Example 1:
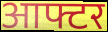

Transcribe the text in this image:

आफ्टर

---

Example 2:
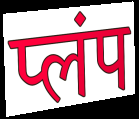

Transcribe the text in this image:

प्लंप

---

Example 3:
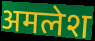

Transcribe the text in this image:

अमलेश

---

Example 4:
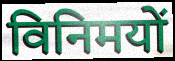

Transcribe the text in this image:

विनिमयों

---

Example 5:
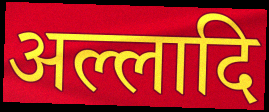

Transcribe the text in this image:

अल्लादि